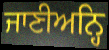
ਜਾਣੀਅਨ੍ਹਿ